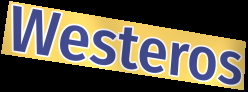
Westeros